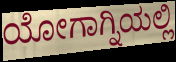
ಯೋಗಾಗ್ನಿಯಲ್ಲಿ